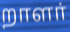
றாளர்